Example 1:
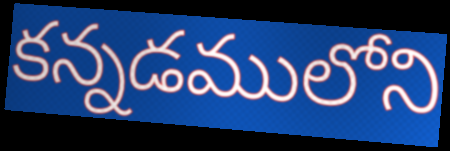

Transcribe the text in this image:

కన్నడములోని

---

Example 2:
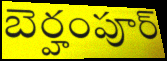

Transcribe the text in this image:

బెర్హంపూర్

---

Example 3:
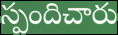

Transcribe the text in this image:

స్పందిచారు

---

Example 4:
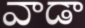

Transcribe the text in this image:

వాడా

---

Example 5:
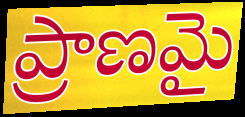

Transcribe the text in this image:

ప్రాణమై